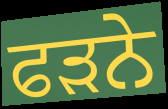
ਫੜਨੇ